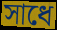
সাধে